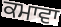
ਕਮਾਵਾ